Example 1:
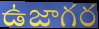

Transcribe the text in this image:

ఉజాగర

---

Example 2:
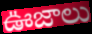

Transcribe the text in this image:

ఊజాలు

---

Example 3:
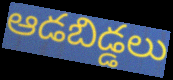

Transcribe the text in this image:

ఆడబిడ్డలు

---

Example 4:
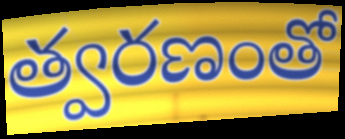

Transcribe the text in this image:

త్వరణంతో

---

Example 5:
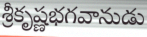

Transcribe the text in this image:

శ్రీకృష్ణభగవానుడు